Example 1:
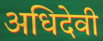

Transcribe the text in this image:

अधिदेवी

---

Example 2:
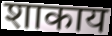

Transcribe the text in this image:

शाकाय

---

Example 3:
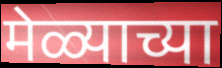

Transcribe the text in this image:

मेळ्याच्या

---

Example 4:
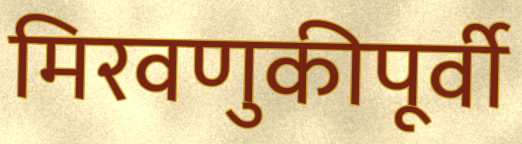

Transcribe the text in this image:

मिरवणुकीपूर्वी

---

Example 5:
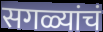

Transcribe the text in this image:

सगळ्यांचं